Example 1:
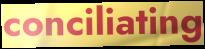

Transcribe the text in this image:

conciliating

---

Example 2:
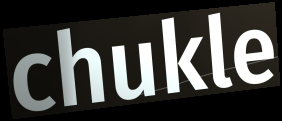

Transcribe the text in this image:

chukle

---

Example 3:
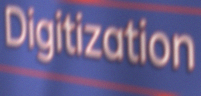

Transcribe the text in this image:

Digitization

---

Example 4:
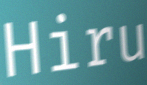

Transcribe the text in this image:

Hiru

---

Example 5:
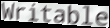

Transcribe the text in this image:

Writable